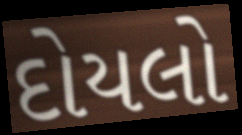
દોયલો